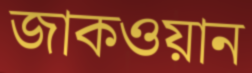
জাকওয়ান